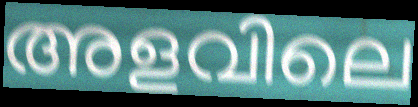
അളവിലെ